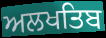
ਅਲਖਤਿਬ